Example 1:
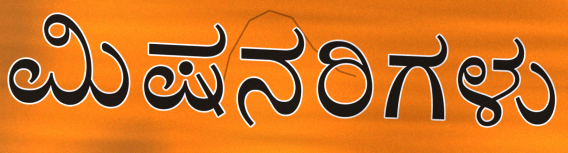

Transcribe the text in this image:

ಮಿಷನರಿಗಳು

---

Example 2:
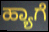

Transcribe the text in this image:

ಹ್ಯಾಗೆ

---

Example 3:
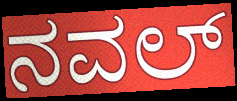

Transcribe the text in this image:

ನವಲ್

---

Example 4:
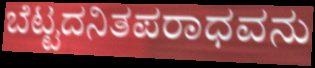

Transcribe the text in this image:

ಬೆಟ್ಟದನಿತಪರಾಧವನು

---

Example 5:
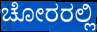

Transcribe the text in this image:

ಚೋರರಲ್ಲಿ